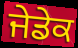
ਜੇਡੇਕ